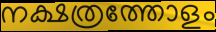
നക്ഷത്രത്തോളം